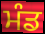
ਮੰਡ